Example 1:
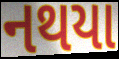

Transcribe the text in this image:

નથયા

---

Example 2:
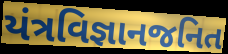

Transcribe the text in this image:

યંત્રવિજ્ઞાનજનિત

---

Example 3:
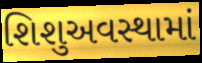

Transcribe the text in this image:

શિશુઅવસ્થામાં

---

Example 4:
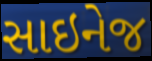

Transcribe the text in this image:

સાઇનેજ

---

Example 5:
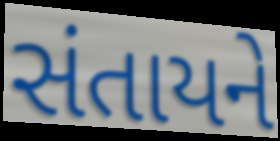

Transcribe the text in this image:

સંતાયને